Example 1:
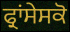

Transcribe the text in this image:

ਫ੍ਰਾਂਸੇਸਕੋ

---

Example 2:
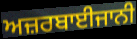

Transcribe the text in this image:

ਅਜ਼ਰਬਾਈਜਾਨੀ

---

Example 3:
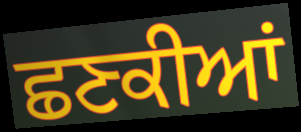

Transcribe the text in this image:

ਛਣਕੀਆਂ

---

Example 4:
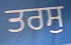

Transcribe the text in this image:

ਤਰਸੁ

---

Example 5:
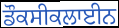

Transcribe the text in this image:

ਡੌਕਸੀਕਲਾਈਨ